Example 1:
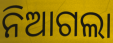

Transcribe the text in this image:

ନିଆଗଲା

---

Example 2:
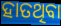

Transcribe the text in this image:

ହାତଥିବା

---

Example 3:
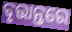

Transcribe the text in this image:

ବୃତ୍ତାନ୍ତରେ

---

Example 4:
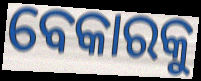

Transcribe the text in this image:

ବେକାରକୁ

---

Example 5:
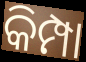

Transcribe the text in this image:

କିମ୍ପା